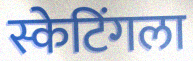
स्केटिंगला